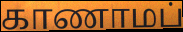
காணாமப்